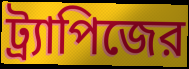
ট্র্যাপিজের